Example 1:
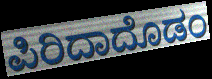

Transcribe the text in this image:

ಪಿರಿದಾದೊಡಂ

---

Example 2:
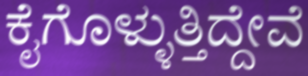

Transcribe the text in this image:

ಕೈಗೊಳ್ಳುತ್ತಿದ್ದೇವೆ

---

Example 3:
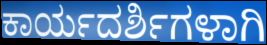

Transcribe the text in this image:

ಕಾರ್ಯದರ್ಶಿಗಳಾಗಿ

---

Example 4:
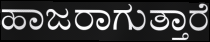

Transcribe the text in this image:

ಹಾಜರಾಗುತ್ತಾರೆ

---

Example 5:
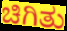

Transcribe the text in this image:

ಚಿಗಿತು